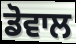
ਡੋਵਾਲ